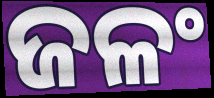
ଜଳଂ